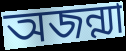
অজন্মা